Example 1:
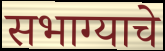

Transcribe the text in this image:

सभाग्याचे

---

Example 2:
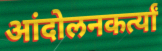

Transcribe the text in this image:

आंदोलनकर्त्यां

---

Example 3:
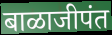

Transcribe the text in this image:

बाळाजीपंत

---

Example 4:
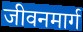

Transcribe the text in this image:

जीवनमार्ग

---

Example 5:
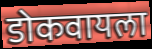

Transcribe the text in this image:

डोकवायला